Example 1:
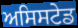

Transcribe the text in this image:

ਅਸਿਸਟੇਡ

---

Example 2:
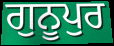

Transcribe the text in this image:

ਗੁਨੂਪੁਰ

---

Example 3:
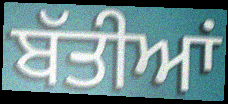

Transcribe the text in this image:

ਬੱਤੀਆਂ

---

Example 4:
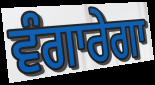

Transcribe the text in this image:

ਵੰਗਾਰੇਗਾ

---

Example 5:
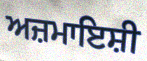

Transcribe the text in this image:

ਅਜ਼ਮਾਇਸ਼ੀ